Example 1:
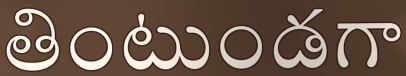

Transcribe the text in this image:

తింటుండగా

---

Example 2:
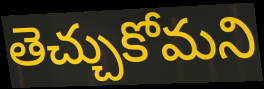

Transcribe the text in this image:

తెచ్చుకోమని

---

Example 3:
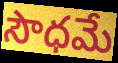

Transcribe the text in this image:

సౌధమే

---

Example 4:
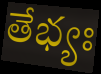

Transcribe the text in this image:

తేభ్యః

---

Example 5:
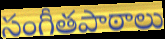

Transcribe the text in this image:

సంగీతపాఠాలు